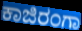
ಕಾಜಿರಂಗಾ